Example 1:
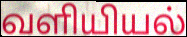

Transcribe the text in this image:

வளியியல்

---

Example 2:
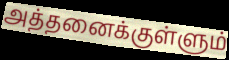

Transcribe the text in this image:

அத்தனைக்குள்ளும்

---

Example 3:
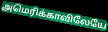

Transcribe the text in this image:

அமெரிக்காவிலேயே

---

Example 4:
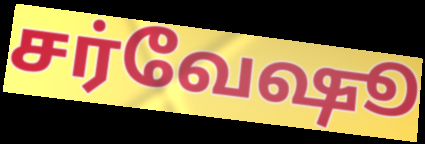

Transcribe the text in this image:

சர்வேஷூ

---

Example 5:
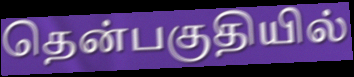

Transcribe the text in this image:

தென்பகுதியில்